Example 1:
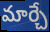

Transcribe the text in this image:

మార్చే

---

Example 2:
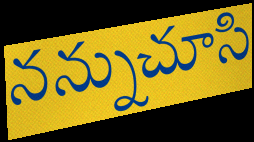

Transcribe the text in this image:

నన్నుచూసి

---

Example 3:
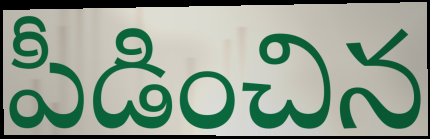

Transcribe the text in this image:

పీడించిన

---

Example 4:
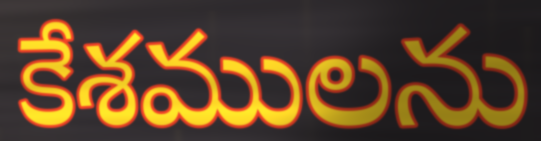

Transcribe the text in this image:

కేశములను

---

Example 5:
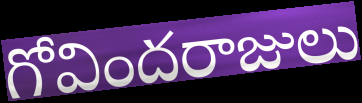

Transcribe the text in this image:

గోవిందరాజులు